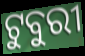
ଟୁବୁରୀ